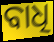
ବାଧି